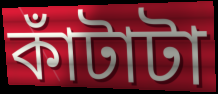
কাঁটাটা